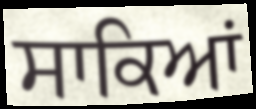
ਸਾਕਿਆਂ